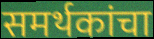
समर्थकांचा